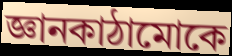
জ্ঞানকাঠামোকে